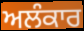
ਅਲੰਕਾਰ